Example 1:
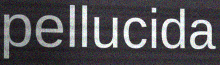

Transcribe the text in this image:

pellucida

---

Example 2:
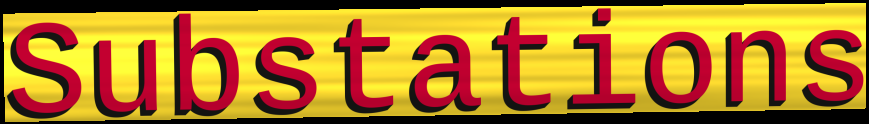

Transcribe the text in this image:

Substations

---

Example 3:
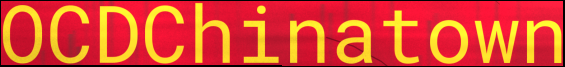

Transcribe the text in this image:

OCDChinatown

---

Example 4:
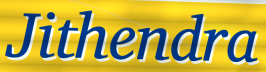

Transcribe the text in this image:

Jithendra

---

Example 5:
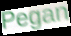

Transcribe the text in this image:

Pegan